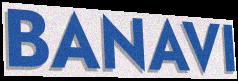
BANAVI